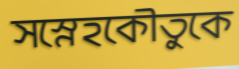
সস্নেহকৌতুকে